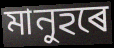
মানুহৰে